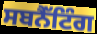
ਸਬਨੈੱਟਿੰਗ